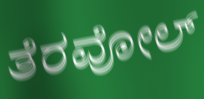
ತೆರವೋಲ್